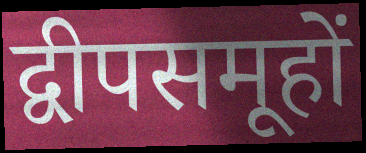
द्वीपसमूहों